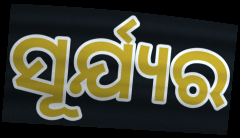
ସୂର୍ଯ୍ୟର